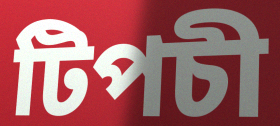
টিপচী